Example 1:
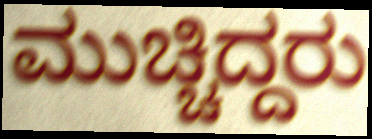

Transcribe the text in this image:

ಮುಚ್ಚಿದ್ದರು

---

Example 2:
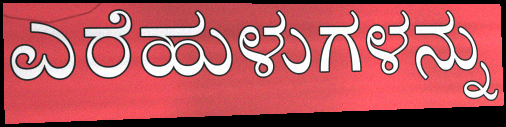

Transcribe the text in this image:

ಎರೆಹುಳುಗಳನ್ನು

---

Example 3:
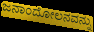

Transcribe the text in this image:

ಜನಾಂದೋಲನವನ್ನು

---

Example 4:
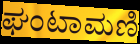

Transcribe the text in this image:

ಘಂಟಾಮಣಿ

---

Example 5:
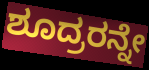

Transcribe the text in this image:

ಶೂದ್ರರನ್ನೇ